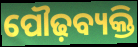
ପୌଢ଼ବ୍ୟକ୍ତି